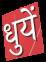
धुयें